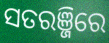
ସତରଞ୍ଜିରେ